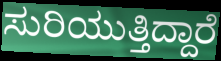
ಸುರಿಯುತ್ತಿದ್ದಾರೆ